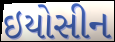
ઇયોસીન